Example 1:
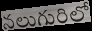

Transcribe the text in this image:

నలుగురిలో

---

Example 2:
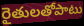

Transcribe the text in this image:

రైతులతోపాటు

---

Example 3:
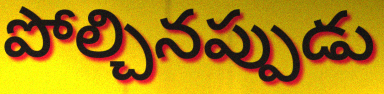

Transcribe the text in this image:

పోల్చినప్పుడు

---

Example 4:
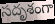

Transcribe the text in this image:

సదృశంగా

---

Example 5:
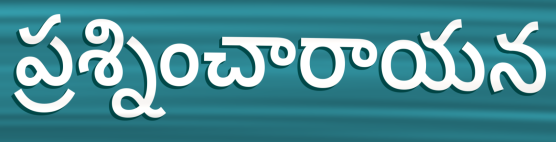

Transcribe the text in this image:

ప్రశ్నించారాయన